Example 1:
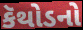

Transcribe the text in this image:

કૅથોડનો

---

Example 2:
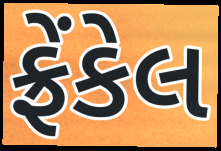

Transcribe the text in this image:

ફ્રેંકેલ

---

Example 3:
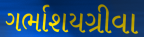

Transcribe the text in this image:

ગર્ભાશયગ્રીવા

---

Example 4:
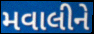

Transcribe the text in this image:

મવાલીને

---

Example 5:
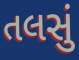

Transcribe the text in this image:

તલસું